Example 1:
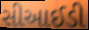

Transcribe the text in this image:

સીઆઈડી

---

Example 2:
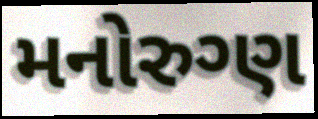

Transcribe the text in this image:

મનોરુગ્ણ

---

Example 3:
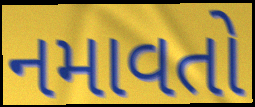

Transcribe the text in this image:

નમાવતો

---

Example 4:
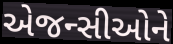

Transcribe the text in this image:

એજન્સીઓને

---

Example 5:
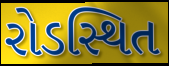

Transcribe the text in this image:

રોડસ્થિત